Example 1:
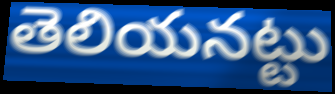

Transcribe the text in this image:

తెలియనట్టు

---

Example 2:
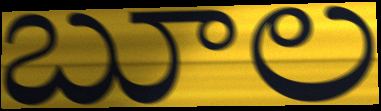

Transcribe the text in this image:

బూల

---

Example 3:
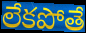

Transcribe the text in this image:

లేకపోతే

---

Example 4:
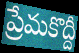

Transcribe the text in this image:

ప్రేమకొద్దీ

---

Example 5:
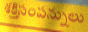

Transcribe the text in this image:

శక్తిసంపన్నులు